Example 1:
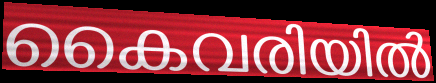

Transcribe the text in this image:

കൈവരിയിൽ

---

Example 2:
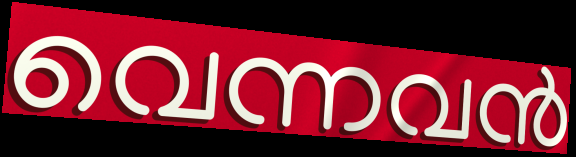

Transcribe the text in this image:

വെന്നവൻ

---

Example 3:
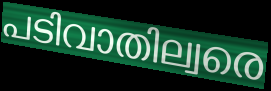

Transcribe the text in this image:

പടിവാതില്വരെ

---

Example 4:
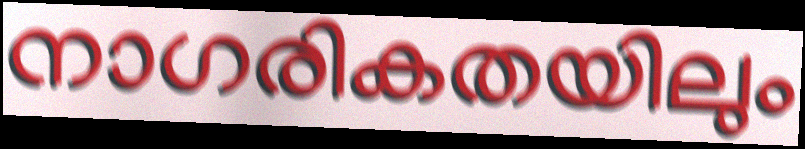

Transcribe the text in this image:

നാഗരികതയിലും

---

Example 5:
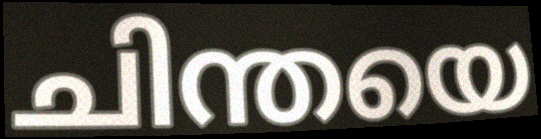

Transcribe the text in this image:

ചിന്തയെ